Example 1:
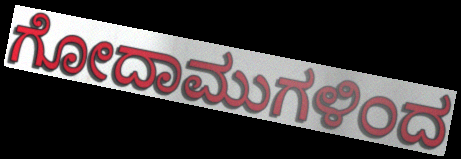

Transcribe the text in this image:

ಗೋದಾಮುಗಳಿಂದ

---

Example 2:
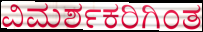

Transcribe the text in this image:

ವಿಮರ್ಶಕರಿಗಿಂತ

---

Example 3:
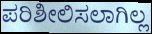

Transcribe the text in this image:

ಪರಿಶೀಲಿಸಲಾಗಿಲ್ಲ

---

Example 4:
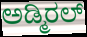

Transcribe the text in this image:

ಅಡ್ಮಿರಲ್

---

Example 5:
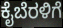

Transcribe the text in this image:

ಕೈಬೆರಳಿಗೆ